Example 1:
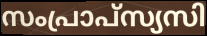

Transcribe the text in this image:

സംപ്രാപ്സ്യസി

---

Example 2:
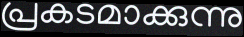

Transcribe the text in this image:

പ്രകടമാക്കുന്നു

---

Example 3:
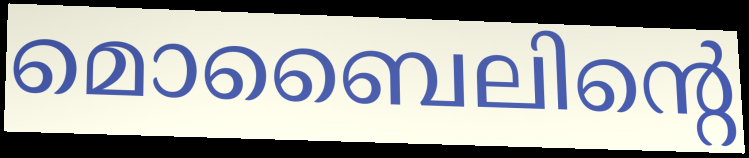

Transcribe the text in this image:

മൊബൈലിന്റെ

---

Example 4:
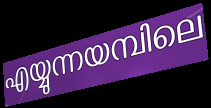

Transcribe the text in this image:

എയ്യുന്നയമ്പിലെ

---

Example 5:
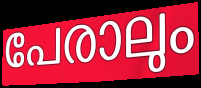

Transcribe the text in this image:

പേരാലും